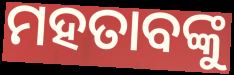
ମହତାବଙ୍କୁ